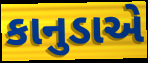
કાનુડાએ